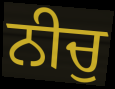
ਨੀਚੁ